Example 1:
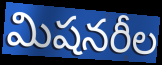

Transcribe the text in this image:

మిషనరీల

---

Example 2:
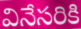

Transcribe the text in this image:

వినేసరికి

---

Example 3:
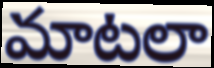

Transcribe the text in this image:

మాటలా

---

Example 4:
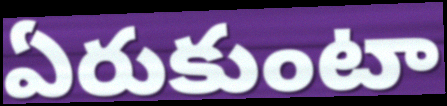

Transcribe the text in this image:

ఏరుకుంటా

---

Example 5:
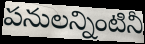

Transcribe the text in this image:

పనులన్నింటినీ